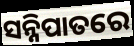
ସନ୍ନିପାତରେ